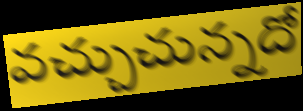
వచ్చుచున్నదో